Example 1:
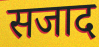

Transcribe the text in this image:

सजाद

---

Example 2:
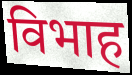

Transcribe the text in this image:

विभाह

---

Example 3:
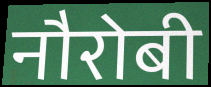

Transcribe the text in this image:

नौरोबी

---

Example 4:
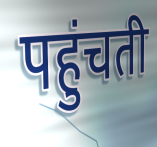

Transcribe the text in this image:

पहुंचती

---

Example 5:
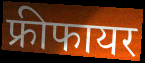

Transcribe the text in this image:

फ्रीफायर